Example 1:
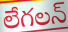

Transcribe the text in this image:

లేగలన్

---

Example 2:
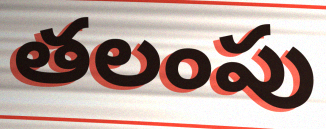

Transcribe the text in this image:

తలంపు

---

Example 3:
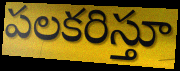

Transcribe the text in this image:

పలకరిస్తూ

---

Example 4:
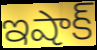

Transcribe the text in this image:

ఇషాక్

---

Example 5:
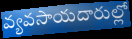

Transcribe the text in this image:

వ్యవసాయదారుల్లో